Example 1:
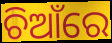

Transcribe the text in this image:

ଚିଆଁରେ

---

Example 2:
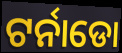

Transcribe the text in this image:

ଟର୍ନାଡୋ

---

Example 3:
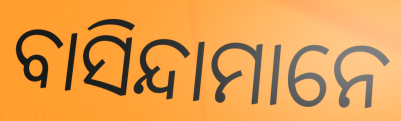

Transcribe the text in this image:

ବାସିନ୍ଦାମାନେ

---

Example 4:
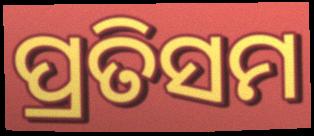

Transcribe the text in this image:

ପ୍ରତିସମ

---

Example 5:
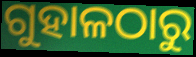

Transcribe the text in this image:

ଗୁହାଳଠାରୁ